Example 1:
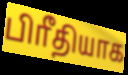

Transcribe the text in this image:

பிரீதியாக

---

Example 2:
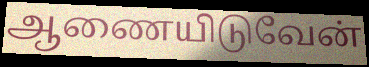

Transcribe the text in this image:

ஆணையிடுவேன்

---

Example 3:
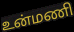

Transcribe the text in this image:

உன்மணி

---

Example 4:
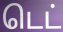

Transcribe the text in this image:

டெட்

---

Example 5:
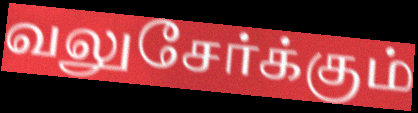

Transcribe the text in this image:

வலுசேர்க்கும்